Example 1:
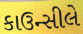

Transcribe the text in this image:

કાઉન્સીલે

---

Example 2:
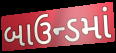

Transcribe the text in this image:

બાઉન્ડમાં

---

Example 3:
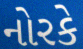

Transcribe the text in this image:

નોરકે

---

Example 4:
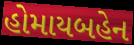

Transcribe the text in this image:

હોમાયબહેન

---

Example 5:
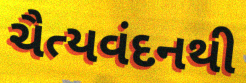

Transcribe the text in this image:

ચૈત્યવંદનથી